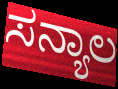
ಸನ್ಯಾಲ